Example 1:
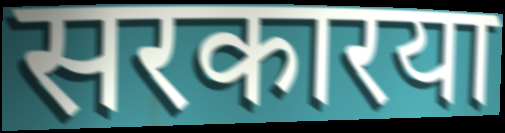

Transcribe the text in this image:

सरकारया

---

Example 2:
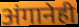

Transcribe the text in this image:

अंगानेही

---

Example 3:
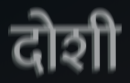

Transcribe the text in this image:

दोशी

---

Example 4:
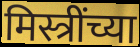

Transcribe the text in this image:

मिस्त्रींच्या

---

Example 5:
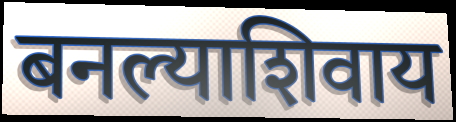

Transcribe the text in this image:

बनल्याशिवाय